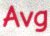
Avg